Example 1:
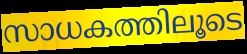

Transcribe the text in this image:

സാധകത്തിലൂടെ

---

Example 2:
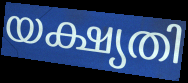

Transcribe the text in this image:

യക്ഷ്യതി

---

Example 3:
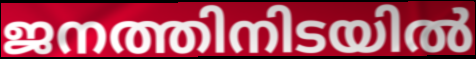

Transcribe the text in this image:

ജനത്തിനിടയിൽ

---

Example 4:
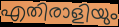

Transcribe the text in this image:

എതിരാളിയും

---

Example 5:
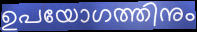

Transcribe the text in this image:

ഉപയോഗത്തിനും